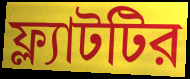
ফ্ল্যাটটির